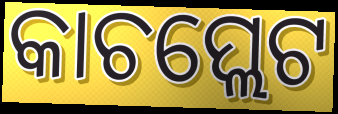
କାଚପ୍ଲେଟ